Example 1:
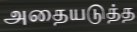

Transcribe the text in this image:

அதையடுத்த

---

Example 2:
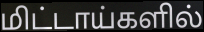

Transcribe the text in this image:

மிட்டாய்களில்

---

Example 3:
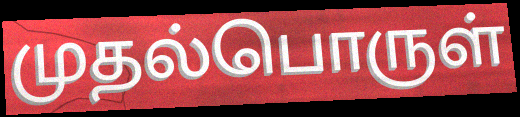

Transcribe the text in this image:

முதல்பொருள்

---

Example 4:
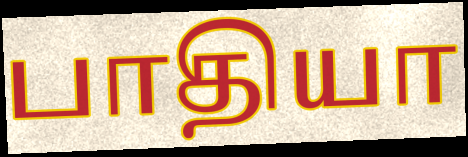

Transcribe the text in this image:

பாதியா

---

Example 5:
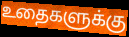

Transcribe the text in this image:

உதைகளுக்கு